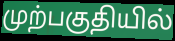
முற்பகுதியில்